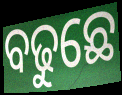
ବଢୁଛେ